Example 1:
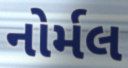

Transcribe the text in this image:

નોર્મલ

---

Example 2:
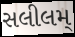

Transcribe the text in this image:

સલીલમ્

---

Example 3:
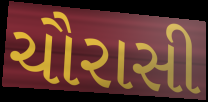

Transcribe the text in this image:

ચૌરાસી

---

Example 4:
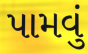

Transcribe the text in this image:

પામવું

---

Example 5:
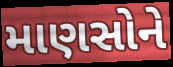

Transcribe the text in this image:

માણસોને